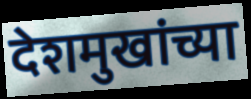
देशमुखांच्या